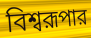
বিশ্বরূপার